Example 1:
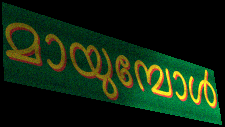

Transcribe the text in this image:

മായുമ്പോൾ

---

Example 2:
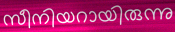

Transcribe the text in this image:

സീനിയറായിരുന്നു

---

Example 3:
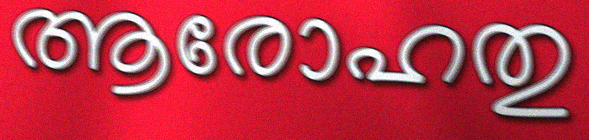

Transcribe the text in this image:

ആരോഹതു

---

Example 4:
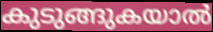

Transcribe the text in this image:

കുടുങ്ങുകയാൽ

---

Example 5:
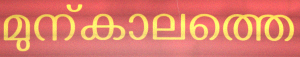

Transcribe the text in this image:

മുന്കാലത്തെ